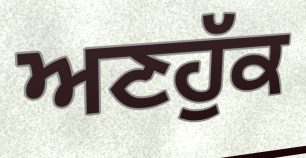
ਅਣਹੁੱਕ